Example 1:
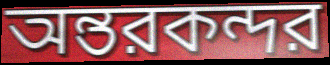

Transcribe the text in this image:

অন্তরকন্দর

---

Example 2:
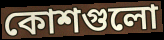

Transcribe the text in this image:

কোশগুলো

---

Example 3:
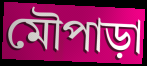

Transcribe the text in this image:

মৌপাড়া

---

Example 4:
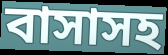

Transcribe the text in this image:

বাসাসহ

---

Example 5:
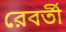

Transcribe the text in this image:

রেবর্তী